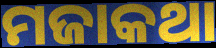
ମଜାକଥା